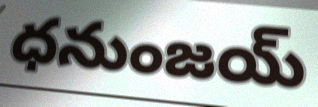
ధనుంజయ్